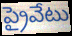
ప్రైవేటు